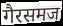
गैरसमज